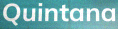
Quintana